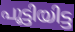
പൂട്ടിയിട്ട